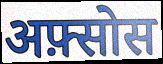
अफ़्सोस